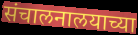
संचालनालयाच्या